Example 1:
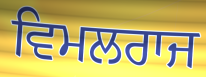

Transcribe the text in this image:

ਵਿਮਲਰਾਜ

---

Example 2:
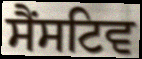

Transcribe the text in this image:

ਸੈਂਸਟਿਵ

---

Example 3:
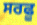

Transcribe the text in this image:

ਸਰਫੂ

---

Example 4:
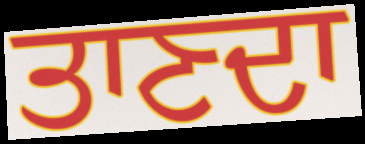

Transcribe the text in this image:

ਤਾਣਦਾ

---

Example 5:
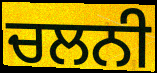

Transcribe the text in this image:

ਚਲਨੀ